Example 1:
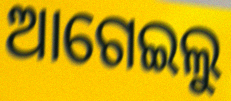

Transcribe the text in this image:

ଆଗେଇଲୁ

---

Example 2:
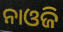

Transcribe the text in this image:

ନାଓଜି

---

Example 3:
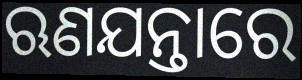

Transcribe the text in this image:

ଋଣଯନ୍ତାରେ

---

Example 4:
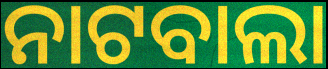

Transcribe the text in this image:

ନାଟବାଲା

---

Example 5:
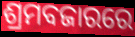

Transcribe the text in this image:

ଶ୍ରମବଜାରରେ